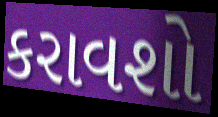
કરાવશો